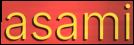
asami